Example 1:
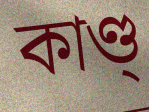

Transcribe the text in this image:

কাণ্ড্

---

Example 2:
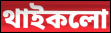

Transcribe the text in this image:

থাইকলো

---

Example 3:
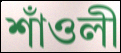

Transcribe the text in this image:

শাঁওলী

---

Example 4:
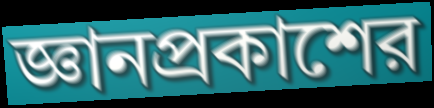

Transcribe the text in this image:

জ্ঞানপ্রকাশের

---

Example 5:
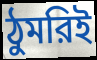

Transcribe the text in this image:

ঠুমরিই